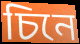
চিনে